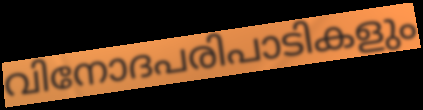
വിനോദപരിപാടികളും